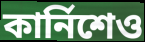
কার্নিশেও